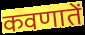
कवणातें